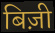
बिज़ी